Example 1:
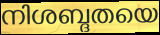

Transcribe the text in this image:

നിശബ്ദതയെ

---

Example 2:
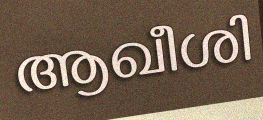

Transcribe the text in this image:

ആഖീശി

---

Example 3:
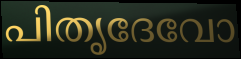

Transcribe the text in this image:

പിതൃദേവോ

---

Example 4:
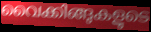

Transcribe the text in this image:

വൈക്കിങ്ങുകളുടെ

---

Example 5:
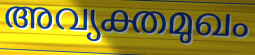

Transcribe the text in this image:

അവ്യക്തമുഖം